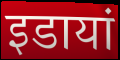
इडायां